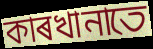
কাৰখানাতে